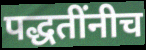
पद्धतींनीच